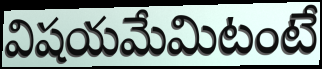
విషయమేమిటంటే